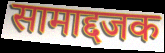
सामाद्दजक